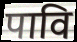
पावि